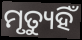
ମୃତ୍ୟୁହିଁ